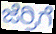
ಜೆರ್ರಿಗೆ